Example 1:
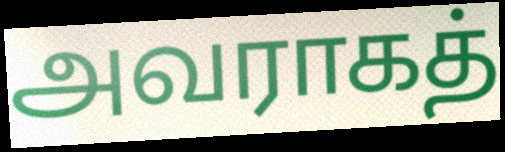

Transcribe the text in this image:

அவராகத்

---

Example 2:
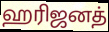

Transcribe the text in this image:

ஹரிஜனத்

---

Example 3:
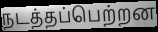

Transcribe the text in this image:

நடத்தப்பெற்றன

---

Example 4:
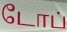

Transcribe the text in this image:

டோப்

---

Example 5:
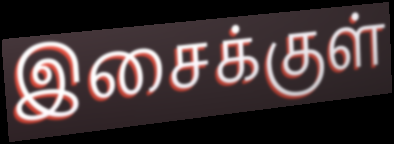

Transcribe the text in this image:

இசைக்குள்